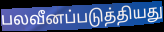
பலவீனப்படுத்தியது